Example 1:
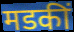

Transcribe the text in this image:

मडकीं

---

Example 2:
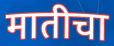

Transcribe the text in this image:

मातीचा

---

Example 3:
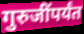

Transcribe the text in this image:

गुरुजींपर्यंत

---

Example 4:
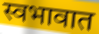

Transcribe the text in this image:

स्वभावात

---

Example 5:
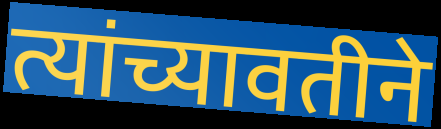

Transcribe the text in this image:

त्यांच्यावतीने